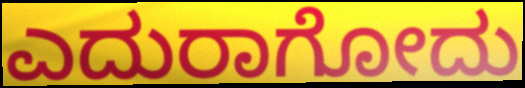
ಎದುರಾಗೋದು